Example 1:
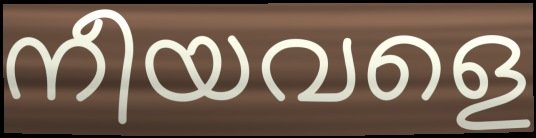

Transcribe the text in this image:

നീയവളെ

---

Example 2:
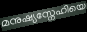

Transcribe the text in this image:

മനുഷ്യസ്നേഹിയെ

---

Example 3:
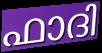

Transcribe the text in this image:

ഫാദി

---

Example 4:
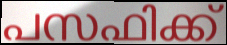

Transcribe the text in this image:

പസഫിക്ക്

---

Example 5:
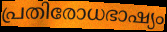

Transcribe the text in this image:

പ്രതിരോധഭാഷ്യം